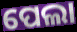
ପେଲା